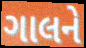
ગાલને